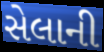
સેલાની